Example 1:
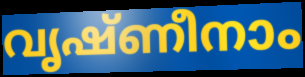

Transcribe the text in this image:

വൃഷ്ണീനാം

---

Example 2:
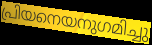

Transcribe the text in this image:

പ്രിയനെയനുഗമിച്ചു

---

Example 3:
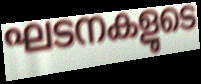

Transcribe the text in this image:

ഘടനകളുടെ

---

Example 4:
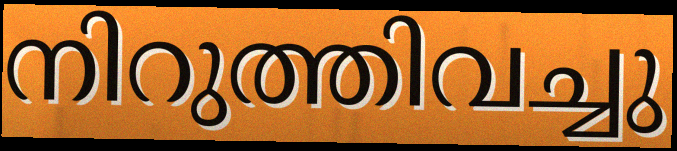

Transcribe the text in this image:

നിറുത്തിവച്ചു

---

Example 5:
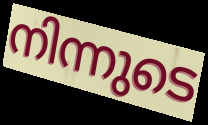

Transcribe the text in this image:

നിന്നുടെ